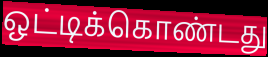
ஒட்டிக்கொண்டது